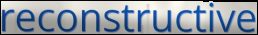
reconstructive